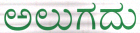
ಅಲುಗದು